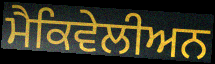
ਮੈਕਿਵੇਲੀਅਨ